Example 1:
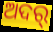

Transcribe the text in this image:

ଅଦର୍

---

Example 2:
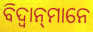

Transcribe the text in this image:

ବିଦ୍ୱାନ୍‌ମାନେ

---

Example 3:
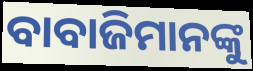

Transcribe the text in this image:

ବାବାଜିମାନଙ୍କୁ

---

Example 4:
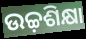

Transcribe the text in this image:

ଉଚ୍ଚ଼ଶିକ୍ଷା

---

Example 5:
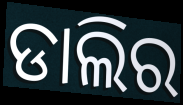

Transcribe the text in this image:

ଡାଲିର